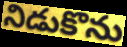
నిడుకొను